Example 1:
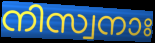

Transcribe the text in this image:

നിസ്വനാഃ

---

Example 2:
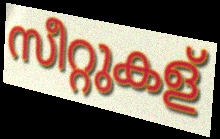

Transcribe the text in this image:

സീറ്റുകള്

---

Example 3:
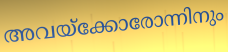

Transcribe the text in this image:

അവയ്ക്കോരോന്നിനും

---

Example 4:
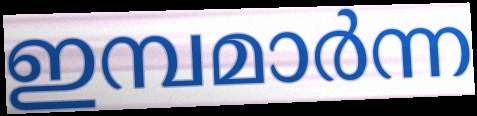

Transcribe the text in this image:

ഇമ്പമാർന്ന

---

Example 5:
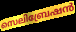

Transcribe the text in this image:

സെലിബ്രേഷൻ